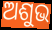
ଅଶୁଭ